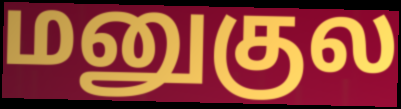
மனுகுல